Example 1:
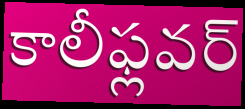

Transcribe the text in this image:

కాలీఫ్లవర్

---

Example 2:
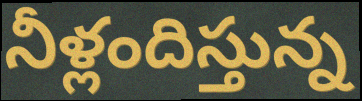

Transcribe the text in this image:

నీళ్లందిస్తున్న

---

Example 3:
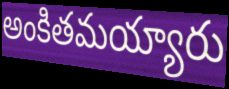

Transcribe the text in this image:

అంకితమయ్యారు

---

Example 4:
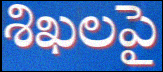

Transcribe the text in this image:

శిఖలపై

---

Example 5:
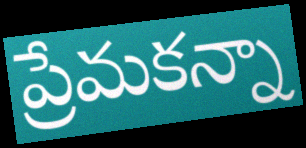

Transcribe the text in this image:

ప్రేమకన్నా